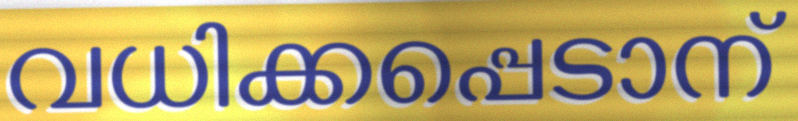
വധിക്കപ്പെടാന്